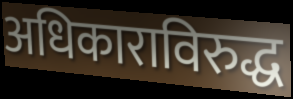
अधिकाराविरुद्ध